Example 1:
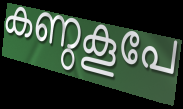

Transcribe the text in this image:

കണ്ഠകൂപേ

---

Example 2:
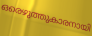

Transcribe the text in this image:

ഒരെഴുത്തുകാരനായി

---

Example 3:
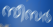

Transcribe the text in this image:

സീസർ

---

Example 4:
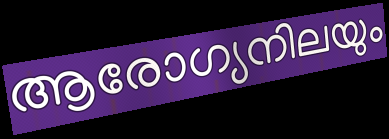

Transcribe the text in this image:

ആരോഗ്യനിലയും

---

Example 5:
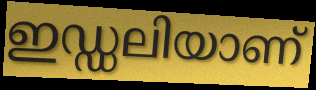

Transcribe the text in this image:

ഇഡ്ഡലിയാണ്